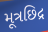
મૂત્રછિદ્ર